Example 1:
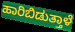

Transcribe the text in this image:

ಹಾರಿಬಿಡುತ್ತಾಳೆ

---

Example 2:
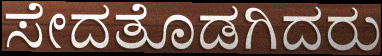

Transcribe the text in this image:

ಸೇದತೊಡಗಿದರು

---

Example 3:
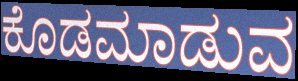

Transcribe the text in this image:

ಕೊಡಮಾಡುವ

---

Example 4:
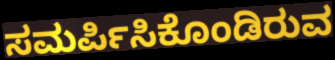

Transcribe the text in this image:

ಸಮರ್ಪಿಸಿಕೊಂಡಿರುವ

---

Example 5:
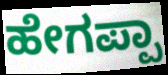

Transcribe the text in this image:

ಹೇಗಪ್ಪಾ